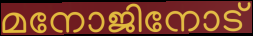
മനോജിനോട്